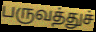
பருவத்துச்